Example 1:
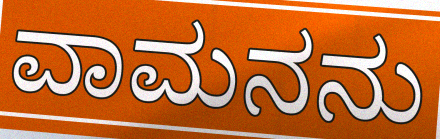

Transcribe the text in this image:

ವಾಮನನು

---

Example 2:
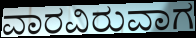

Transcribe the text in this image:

ವಾರವಿರುವಾಗ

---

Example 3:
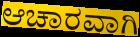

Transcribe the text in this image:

ಆಚಾರವಾಗಿ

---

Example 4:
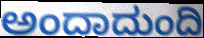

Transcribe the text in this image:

ಅಂದಾದುಂದಿ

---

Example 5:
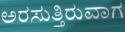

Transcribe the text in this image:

ಅರಸುತ್ತಿರುವಾಗ